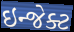
ઇન્જેક્ટ